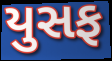
યુસફ